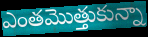
ఎంతమొత్తుకున్నా